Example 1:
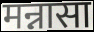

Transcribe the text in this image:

मन्नासा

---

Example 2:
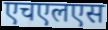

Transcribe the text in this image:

एचएलएस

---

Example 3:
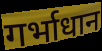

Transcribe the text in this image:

गर्भाधान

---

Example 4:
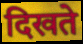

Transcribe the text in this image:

दिखते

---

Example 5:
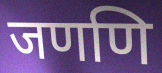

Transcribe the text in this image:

जणणि